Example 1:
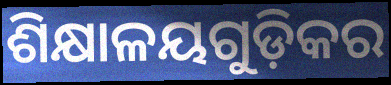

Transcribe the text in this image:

ଶିକ୍ଷାଳୟଗୁଡ଼ିକର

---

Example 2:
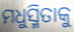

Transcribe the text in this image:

ମଧୁସ୍ମିତାକୁ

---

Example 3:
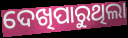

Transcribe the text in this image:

ଦେଖିପାରୁଥିଲା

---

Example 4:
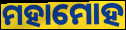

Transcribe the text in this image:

ମହାମୋହ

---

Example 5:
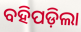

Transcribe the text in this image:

ବହିପଡ଼ିଲା